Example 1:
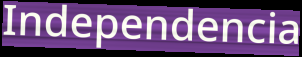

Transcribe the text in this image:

Independencia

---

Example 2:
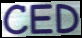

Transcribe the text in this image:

CED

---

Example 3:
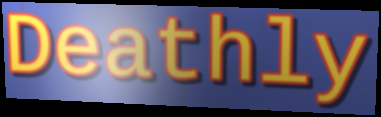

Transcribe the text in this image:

Deathly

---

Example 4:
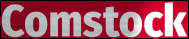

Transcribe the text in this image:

Comstock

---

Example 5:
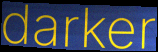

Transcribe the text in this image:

darker